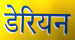
डेरियन